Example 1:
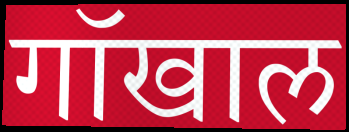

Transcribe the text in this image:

गॉखाल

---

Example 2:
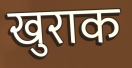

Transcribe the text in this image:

खुराक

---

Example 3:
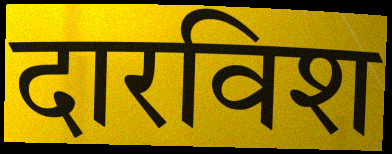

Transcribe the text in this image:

दारविश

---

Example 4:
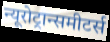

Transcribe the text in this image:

न्यूरोट्रान्समीटर्स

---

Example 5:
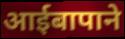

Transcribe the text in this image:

आईबापाने